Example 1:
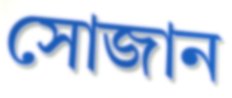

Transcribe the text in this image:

সোজান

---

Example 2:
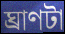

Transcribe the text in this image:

ঘ্রাণটা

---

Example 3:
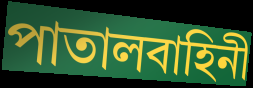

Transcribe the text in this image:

পাতালবাহিনী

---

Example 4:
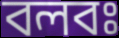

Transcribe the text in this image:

বলবঃ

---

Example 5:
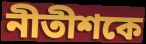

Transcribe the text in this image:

নীতীশকে